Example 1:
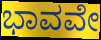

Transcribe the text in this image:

ಭಾವವೇ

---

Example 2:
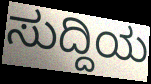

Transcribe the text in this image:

ಸುದ್ದಿಯ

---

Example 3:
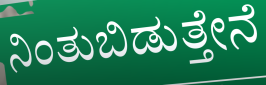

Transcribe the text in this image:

ನಿಂತುಬಿಡುತ್ತೇನೆ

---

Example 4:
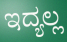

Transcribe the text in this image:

ಇದ್ಯಲ್ಲ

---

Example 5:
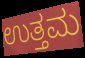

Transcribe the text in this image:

ಉತ್ತಮ